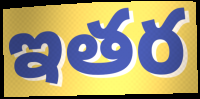
ఇతర